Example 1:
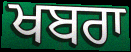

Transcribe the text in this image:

ਖਬਰਾ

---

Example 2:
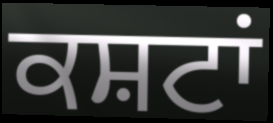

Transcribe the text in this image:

ਕਸ਼ਟਾਂ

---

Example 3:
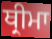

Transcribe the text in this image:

ਥ੍ਰੀਮਾ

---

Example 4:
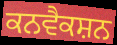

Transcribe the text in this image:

ਕਨਵੈਕਸ਼ਨ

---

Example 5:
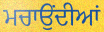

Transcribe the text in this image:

ਮਚਾਉਂਦੀਆਂ